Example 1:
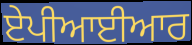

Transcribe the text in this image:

ਏਪੀਆਈਆਰ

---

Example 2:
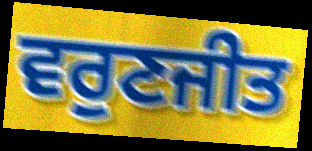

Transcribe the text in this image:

ਵਰੁਣਜੀਤ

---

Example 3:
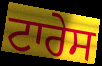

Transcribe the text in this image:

ਟਾਰੇਸ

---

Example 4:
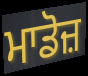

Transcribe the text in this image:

ਮਾਡੋਜ਼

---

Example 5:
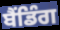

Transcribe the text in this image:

ਬੈਂਡਿੰਗ